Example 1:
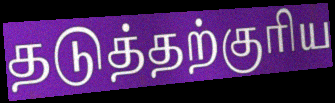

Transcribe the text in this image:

தடுத்தற்குரிய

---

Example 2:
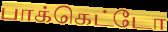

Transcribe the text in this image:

பாக்கெட்டோ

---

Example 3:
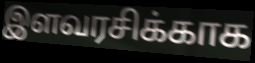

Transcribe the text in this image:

இளவரசிக்காக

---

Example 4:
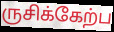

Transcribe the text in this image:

ருசிக்கேற்ப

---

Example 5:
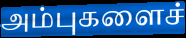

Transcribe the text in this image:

அம்புகளைச்